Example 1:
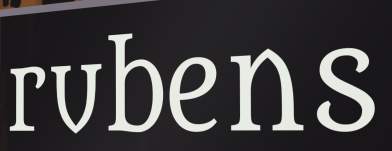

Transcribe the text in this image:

rubens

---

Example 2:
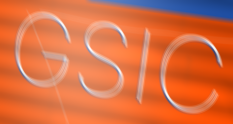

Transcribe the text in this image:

GSIC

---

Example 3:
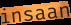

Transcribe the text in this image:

insaan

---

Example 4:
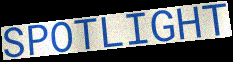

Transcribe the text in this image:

SPOTLIGHT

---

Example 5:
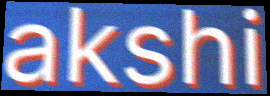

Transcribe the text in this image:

akshi